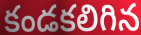
కండకలిగిన